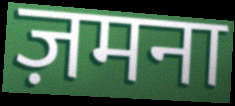
ज़मना